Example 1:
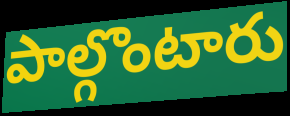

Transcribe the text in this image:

పాల్గొంటారు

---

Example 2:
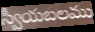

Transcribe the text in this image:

స్వీయబలము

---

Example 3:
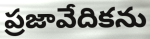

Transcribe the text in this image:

ప్రజావేదికను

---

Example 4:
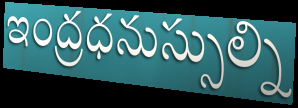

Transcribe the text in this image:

ఇంద్రధనుస్సుల్ని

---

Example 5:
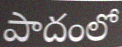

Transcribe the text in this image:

పాదంలో